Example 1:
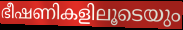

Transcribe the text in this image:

ഭീഷണികളിലൂടെയും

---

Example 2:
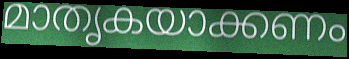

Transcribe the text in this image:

മാതൃകയാക്കണം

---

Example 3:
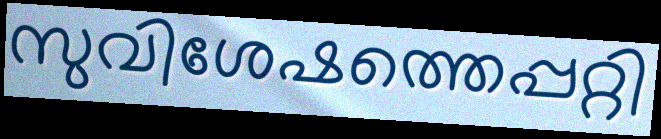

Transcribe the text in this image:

സുവിശേഷത്തെപ്പറ്റി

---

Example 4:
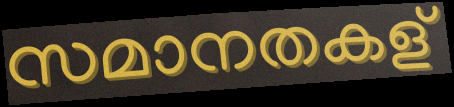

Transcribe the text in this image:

സമാനതകള്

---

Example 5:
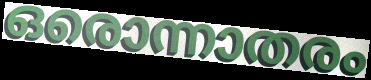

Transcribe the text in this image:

ഒരൊന്നാതരം